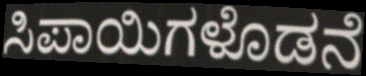
ಸಿಪಾಯಿಗಳೊಡನೆ